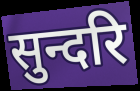
सुन्दरि